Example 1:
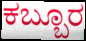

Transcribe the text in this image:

ಕಬ್ಬೂರ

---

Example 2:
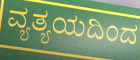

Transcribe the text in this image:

ವ್ಯತ್ಯಯದಿಂದ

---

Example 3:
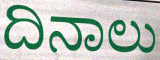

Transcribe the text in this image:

ದಿನಾಲು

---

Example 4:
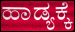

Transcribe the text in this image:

ಹಾಡ್ಯಕ್ಕೆ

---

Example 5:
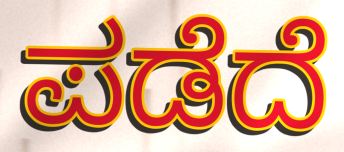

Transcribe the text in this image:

ಪಡೆದೆ